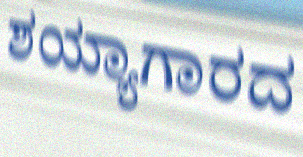
ಶಯ್ಯಾಗಾರದ